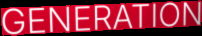
GENERATION